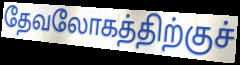
தேவலோகத்திற்குச்